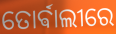
ତୋର୍ଵାଲୀରେ